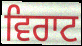
ਵਿਰਾਟ